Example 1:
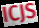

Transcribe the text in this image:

ICJS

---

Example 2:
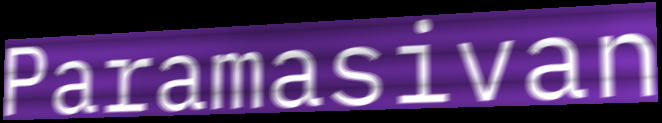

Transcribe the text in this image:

Paramasivan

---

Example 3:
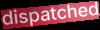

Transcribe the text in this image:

dispatched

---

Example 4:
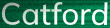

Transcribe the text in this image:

Catford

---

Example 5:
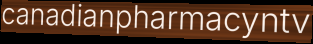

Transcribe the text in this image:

canadianpharmacyntv